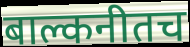
बाल्कनीतच